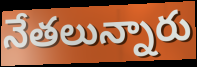
నేతలున్నారు